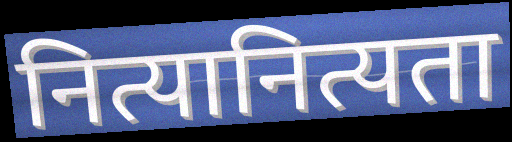
नित्यानित्यता